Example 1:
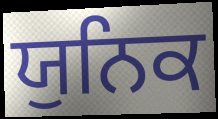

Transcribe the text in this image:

ਯੁਨਿਕ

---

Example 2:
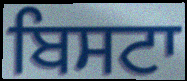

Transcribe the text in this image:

ਬਿਸਟਾ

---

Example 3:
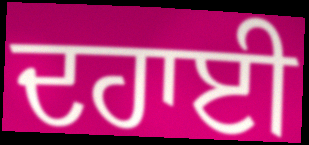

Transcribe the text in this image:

ਦਹਾਈ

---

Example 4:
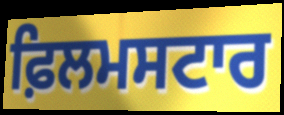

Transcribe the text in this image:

ਫ਼ਿਲਮਸਟਾਰ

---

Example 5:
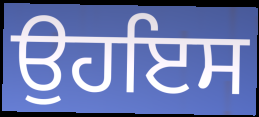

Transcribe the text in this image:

ਉਹਇਸ